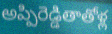
అప్పిరెడ్డితాతోళ్ల